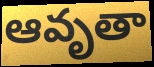
ఆవృతా